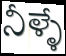
నీళ్ళే